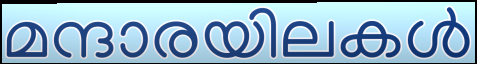
മന്ദാരയിലകൾ